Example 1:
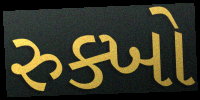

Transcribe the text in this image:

રુક્ખો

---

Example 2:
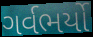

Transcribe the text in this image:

ગર્વભર્યો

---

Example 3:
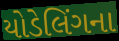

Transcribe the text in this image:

યોડેલિંગના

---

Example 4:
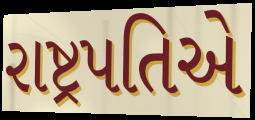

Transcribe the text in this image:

રાષ્ટ્રપતિએ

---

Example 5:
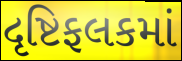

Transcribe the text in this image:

દૃષ્ટિફલકમાં